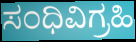
ಸಂಧಿವಿಗ್ರಹಿ